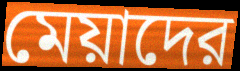
মেয়াদের